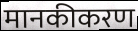
मानकीकरण